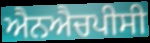
ਐਨਐਚਪੀਸੀ